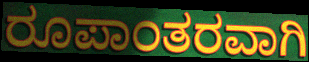
ರೂಪಾಂತರವಾಗಿ